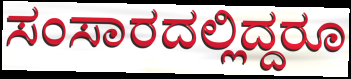
ಸಂಸಾರದಲ್ಲಿದ್ದರೂ